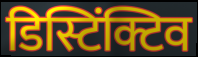
डिस्टिंक्टिव